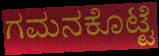
ಗಮನಕೊಟ್ಟೆ